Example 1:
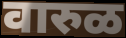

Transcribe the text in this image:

वारुळ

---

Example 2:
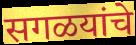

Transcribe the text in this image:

सगळयांचे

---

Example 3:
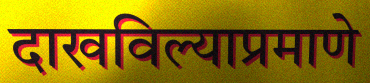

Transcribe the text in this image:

दाखविल्याप्रमाणे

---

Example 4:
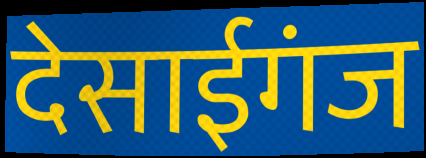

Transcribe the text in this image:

देसाईगंज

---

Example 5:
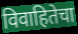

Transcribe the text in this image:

विवाहितेचा